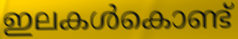
ഇലകൾകൊണ്ട്